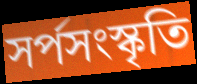
সর্পসংস্কৃতি